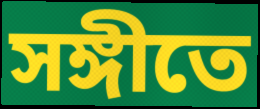
সঙ্গীতে